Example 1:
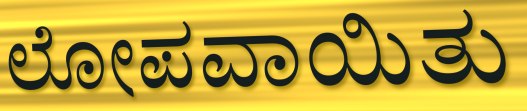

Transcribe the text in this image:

ಲೋಪವಾಯಿತು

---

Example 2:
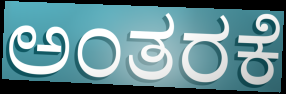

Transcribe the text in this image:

ಅಂತರಕೆ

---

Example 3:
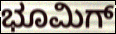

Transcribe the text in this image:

ಭೂಮಿಗ್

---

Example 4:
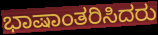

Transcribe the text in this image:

ಭಾಷಾಂತರಿಸಿದರು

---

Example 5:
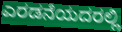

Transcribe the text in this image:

ಎರಡನೆಯದರಲ್ಲಿ